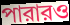
পারারও